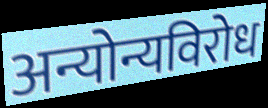
अन्योन्यविरोध